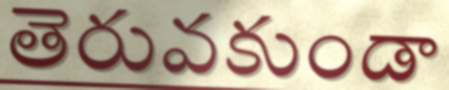
తెరువకుండా